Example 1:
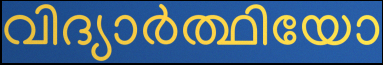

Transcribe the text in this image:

വിദ്യാർത്ഥിയോ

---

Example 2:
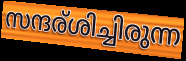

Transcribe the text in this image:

സന്ദര്ശിച്ചിരുന്ന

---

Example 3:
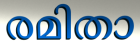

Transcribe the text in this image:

രമിതാ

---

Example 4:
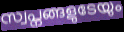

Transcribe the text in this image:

സ്വപ്നങ്ങളുടേയും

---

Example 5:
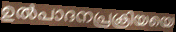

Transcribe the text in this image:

ഉൽപാദനപ്രക്രിയയെ